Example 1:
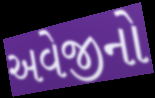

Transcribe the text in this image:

અવેજીનો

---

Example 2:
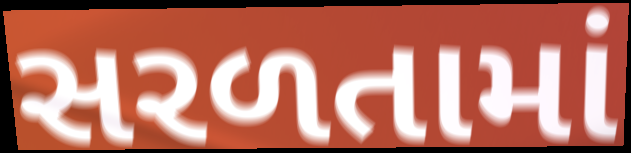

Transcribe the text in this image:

સરળતામાં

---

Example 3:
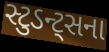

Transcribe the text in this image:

સ્ટુડન્ટ્સના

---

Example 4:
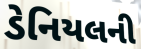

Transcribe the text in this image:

ડેનિયલની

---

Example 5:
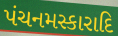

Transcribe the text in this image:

પંચનમસ્કારાદિ